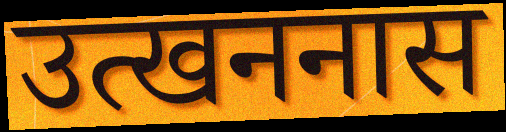
उत्खननास